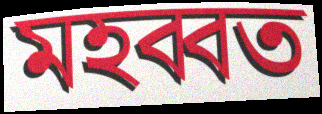
মহব্বত